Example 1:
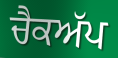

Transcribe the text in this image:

ਚੈਕਅੱਪ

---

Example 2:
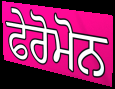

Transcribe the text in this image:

ਫੇਰੋਮੋਨ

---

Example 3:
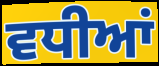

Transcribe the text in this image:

ਵਧੀਆਂ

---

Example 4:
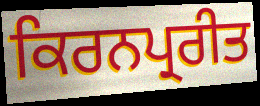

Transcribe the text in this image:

ਕਿਰਨਪ੍ਰਰੀਤ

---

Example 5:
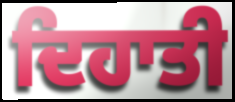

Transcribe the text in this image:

ਦਿਹਾਤੀ